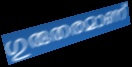
ഗുരുതരമാണ്